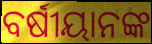
ବର୍ଷୀୟାନଙ୍କ